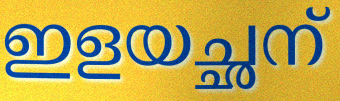
ഇളയച്ഛന്